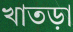
খাতড়া